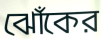
ঝোঁকের